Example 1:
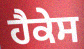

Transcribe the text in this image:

ਹੈਕੇਸ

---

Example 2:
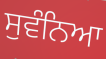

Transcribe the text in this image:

ਸੁਵੰਨਿਆ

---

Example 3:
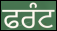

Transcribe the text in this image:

ਫਰੰਟ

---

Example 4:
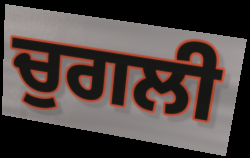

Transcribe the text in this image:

ਚੁਗਲੀ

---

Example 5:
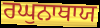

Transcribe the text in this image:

ਰਘੁਨਾਥਾਯ